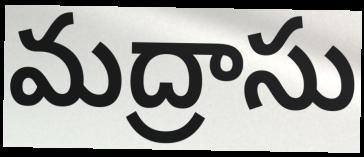
మద్రాసు